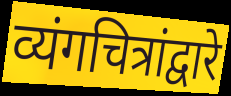
व्यंगचित्रांद्वारे